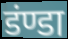
डंण्डा